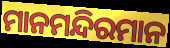
ମାନମନ୍ଦିରମାନ